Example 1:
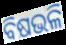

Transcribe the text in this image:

ବିଷଭଳି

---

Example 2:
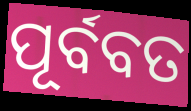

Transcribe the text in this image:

ପୂର୍ବବତ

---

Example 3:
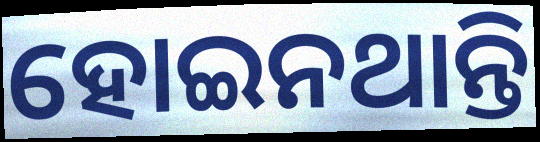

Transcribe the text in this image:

ହୋଇନଥାନ୍ତି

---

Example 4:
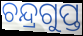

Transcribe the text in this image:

ଚନ୍ଦ୍ରଗୁପ୍ତ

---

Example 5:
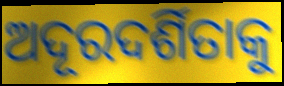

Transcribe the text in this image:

ଅଦୂରଦର୍ଶିତାକୁ